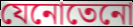
যেনোতেনো